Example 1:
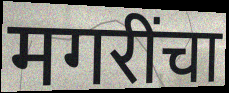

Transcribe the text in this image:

मगरींचा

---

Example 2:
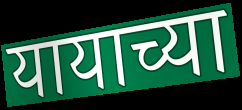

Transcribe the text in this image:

यायाच्या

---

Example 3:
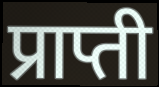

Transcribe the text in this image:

प्राप्ती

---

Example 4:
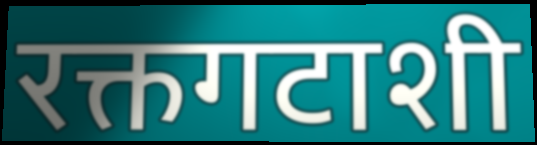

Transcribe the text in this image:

रक्तगटाशी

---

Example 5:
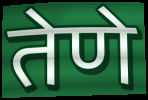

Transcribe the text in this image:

तेणे